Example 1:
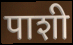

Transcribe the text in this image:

पाशी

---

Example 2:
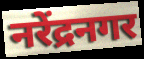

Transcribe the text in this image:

नरेंद्रनगर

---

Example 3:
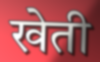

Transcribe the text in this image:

खेती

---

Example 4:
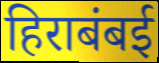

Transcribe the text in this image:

हिराबंबई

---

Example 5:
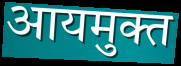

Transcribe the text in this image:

आयमुक्त